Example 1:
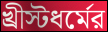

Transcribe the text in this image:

খ্রীস্টধর্মের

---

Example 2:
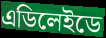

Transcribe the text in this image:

এডিলেইডে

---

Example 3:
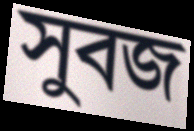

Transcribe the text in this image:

সুবজ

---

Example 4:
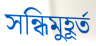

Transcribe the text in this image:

সন্ধিমুহূর্ত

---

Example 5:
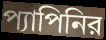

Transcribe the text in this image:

প্যাপিনির